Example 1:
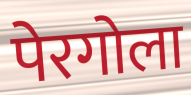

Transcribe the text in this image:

पेरगोला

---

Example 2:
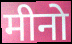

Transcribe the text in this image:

मीनो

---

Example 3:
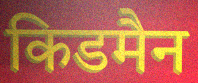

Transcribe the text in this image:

किडमैन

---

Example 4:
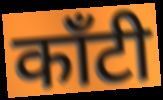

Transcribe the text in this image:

काँटी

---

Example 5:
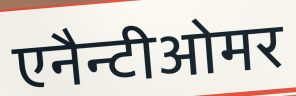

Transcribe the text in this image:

एनैन्टीओमर